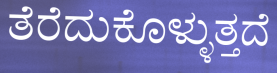
ತೆರೆದುಕೊಳ್ಳುತ್ತದೆ